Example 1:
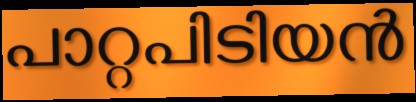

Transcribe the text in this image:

പാറ്റപിടിയൻ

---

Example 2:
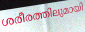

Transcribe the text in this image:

ശരീരത്തിലുമായി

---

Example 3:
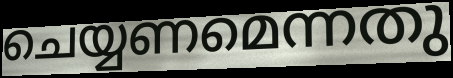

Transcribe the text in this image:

ചെയ്യണമെന്നതു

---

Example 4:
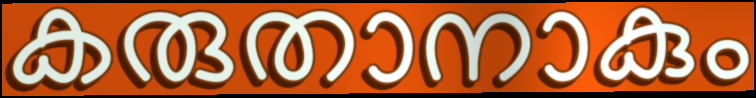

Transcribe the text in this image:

കരുതാനാകും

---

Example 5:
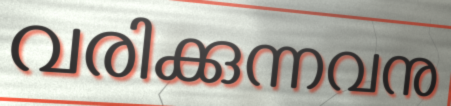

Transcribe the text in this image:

വരിക്കുന്നവനു